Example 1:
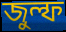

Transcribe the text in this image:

জুল্ফ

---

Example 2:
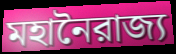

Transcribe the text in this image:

মহানৈরাজ্য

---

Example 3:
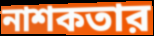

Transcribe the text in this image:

নাশকতার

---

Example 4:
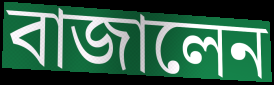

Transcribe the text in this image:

বাজালেন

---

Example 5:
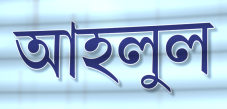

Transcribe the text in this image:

আহলুল